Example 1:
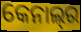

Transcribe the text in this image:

କେନାଲ୍‍ର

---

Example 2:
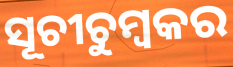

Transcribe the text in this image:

ସୂଚୀଚୁମ୍ବକର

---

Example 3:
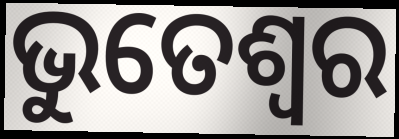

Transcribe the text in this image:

ଭୁତେଶ୍ୱର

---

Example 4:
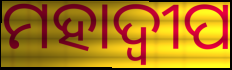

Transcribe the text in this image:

ମହାଦ୍ୱୀପ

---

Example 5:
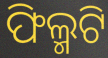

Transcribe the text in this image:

ଫିଲ୍ମଟି